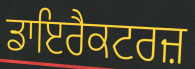
ਡਾਇਰੈਕਟਰਜ਼